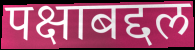
पक्षाबद्दल